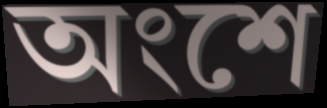
অংশে